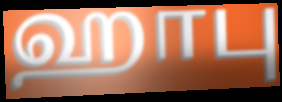
ஹாபு